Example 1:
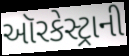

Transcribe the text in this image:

ઑરકેસ્ટ્રાની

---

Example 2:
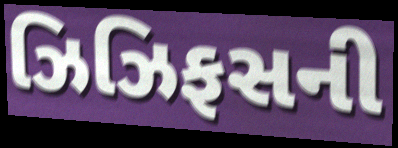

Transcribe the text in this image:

ઝિઝિફસની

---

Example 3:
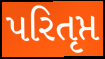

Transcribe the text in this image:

પરિતૃપ્ત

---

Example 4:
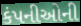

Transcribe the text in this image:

કંપનીઓની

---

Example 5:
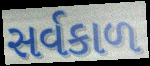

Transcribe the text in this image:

સર્વકાળ